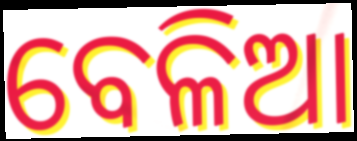
ବେଳିଆ